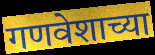
गणवेशाच्या